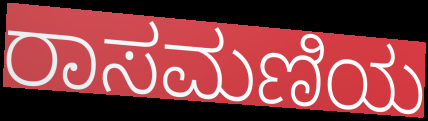
ರಾಸಮಣಿಯ